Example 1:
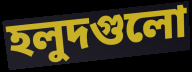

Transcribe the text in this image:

হলুদগুলো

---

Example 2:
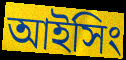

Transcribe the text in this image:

আইসিং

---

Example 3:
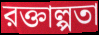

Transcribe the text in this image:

রক্তাল্পতা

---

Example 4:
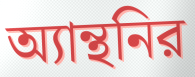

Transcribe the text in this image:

অ্যান্থনির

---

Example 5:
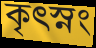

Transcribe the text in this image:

কৃৎস্নং